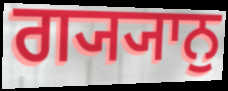
ਗ੍ਯ੍ਯਾਨੁ